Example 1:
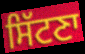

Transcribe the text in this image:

ਸਿੱਟਣਾ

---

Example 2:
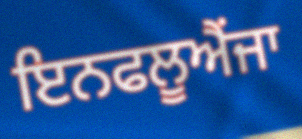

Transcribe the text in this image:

ਇਨਫਲੂਐਂਜਾ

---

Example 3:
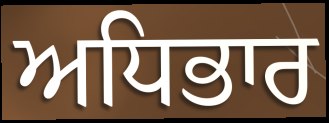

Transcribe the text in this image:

ਅਧਿਭਾਰ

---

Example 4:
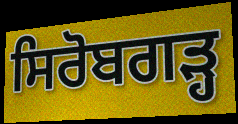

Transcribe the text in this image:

ਸਿਰੋਬਗੜ੍ਹ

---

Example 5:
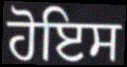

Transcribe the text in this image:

ਹੋਇਸ